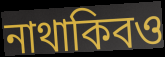
নাথাকিবও